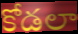
కోడలా